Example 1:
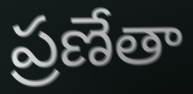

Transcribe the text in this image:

ప్రణేతా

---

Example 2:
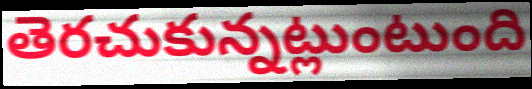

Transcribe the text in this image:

తెరచుకున్నట్లుంటుంది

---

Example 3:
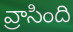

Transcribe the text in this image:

వ్రాసింది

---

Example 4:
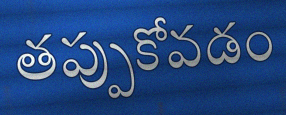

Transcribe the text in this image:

తప్పుకోవడం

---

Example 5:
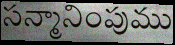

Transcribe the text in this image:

సన్మానింపుము